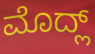
ಮೊದ್ಲ್